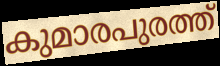
കുമാരപുരത്ത്